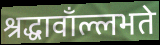
श्रद्धावाँल्लभते